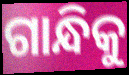
ଗାନ୍ଧିକୁ